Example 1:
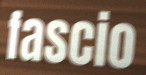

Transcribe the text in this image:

fascio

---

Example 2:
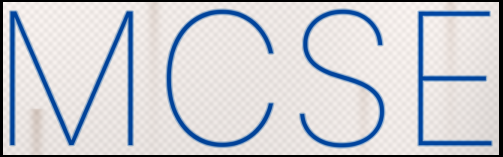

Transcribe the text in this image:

MCSE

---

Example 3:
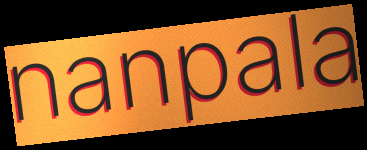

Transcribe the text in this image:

nanpala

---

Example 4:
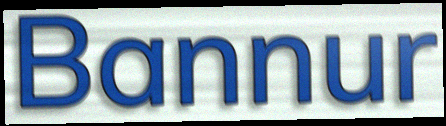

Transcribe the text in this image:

Bannur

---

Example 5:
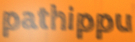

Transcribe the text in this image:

pathippu